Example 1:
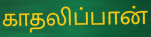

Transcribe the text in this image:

காதலிப்பான்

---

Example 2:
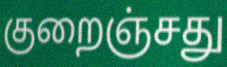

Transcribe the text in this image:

குறைஞ்சது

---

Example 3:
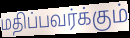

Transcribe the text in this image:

மதிப்பவர்க்கும்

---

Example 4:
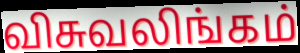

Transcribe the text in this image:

விசுவலிங்கம்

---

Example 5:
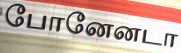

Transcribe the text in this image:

போனேனடா